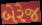
બેરેજ